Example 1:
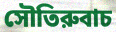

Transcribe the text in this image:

সৌতিরুবাচ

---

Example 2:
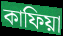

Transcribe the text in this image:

কাফিয়া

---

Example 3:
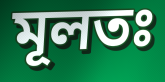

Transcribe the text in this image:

মূলতঃ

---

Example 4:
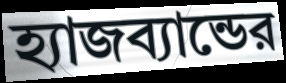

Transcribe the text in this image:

হ্যাজব্যান্ডের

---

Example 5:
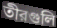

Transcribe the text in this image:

তীরগুলি